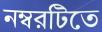
নম্বরটিতে